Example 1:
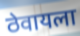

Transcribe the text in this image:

ठेवायला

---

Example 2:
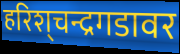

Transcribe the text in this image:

हरिश्चन्द्रगडावर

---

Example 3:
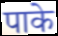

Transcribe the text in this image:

पाके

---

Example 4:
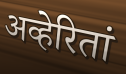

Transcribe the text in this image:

अव्हेरितां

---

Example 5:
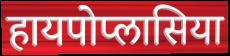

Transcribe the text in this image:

हायपोप्लासिया